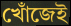
খোঁজেই